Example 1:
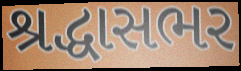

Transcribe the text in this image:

શ્રદ્ધાસભર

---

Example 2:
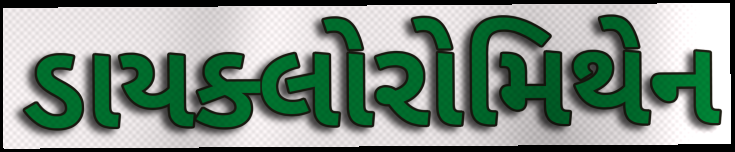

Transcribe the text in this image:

ડાયક્લોરોમિથેન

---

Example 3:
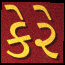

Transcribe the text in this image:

કેરે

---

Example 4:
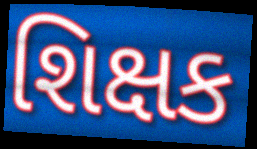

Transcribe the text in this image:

શિક્ષક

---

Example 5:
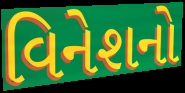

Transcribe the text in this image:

વિનેશનો